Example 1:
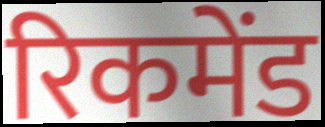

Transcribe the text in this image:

रिकमेंड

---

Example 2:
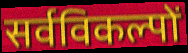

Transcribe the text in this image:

सर्वविकल्पों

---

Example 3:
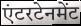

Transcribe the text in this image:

एंटरटेनमेंट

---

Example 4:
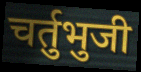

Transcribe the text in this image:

चर्तुभुजी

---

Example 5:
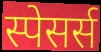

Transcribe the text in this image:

स्पेसर्स